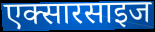
एक्सारसाइज